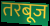
तरबूज